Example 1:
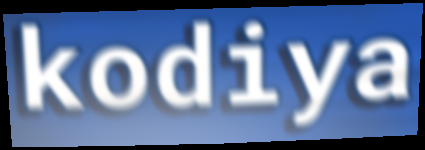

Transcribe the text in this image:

kodiya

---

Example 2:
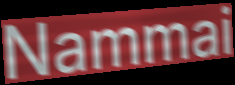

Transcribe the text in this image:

Nammai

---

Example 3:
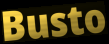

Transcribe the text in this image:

Busto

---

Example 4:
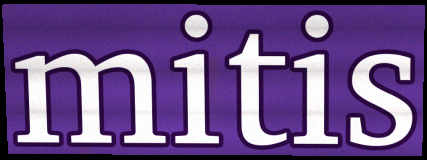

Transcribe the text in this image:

mitis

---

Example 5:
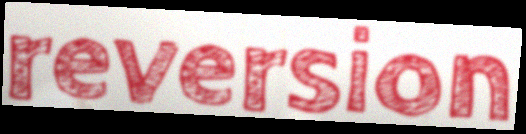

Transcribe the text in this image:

reversion